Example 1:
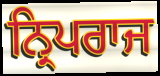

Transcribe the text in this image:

ਨ੍ਰਿਪਰਾਜ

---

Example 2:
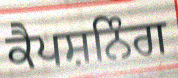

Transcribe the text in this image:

ਕੈਪਸ਼ਨਿੰਗ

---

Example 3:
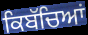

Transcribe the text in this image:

ਕਿਬੱਚਿਆਂ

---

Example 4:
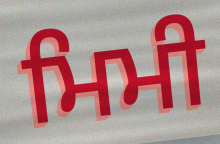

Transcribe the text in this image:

ਮਿਮੀ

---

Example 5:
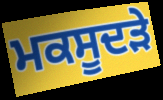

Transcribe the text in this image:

ਮਕਸੂਦੜੇ